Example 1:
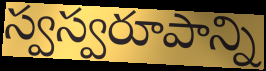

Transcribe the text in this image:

స్వస్వరూపాన్ని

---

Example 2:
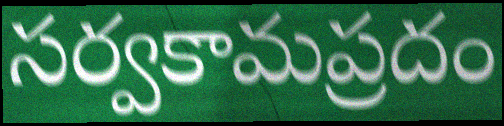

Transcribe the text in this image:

సర్వకామప్రదం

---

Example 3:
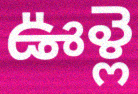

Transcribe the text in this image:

ఊళ్లె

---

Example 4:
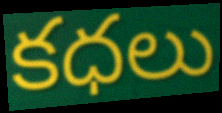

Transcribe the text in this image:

కధలు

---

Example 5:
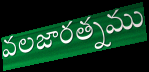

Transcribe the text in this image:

వలజారత్నము